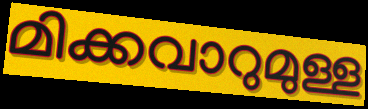
മിക്കവാറുമുള്ള